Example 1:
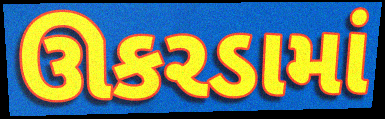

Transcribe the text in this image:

ઊકરડામાં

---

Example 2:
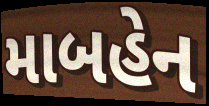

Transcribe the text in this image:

માબહેન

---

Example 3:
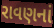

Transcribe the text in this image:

રાવણનાં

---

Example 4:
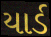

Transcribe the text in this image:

યાર્ડ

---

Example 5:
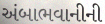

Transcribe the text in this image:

અંબાભવાનીની